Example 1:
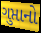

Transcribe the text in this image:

ગુપ્તાનો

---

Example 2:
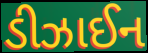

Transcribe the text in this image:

ડીઝાઈન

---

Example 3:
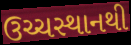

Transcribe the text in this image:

ઉચ્ચસ્થાનથી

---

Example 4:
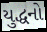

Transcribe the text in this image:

યુદ્ધનો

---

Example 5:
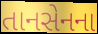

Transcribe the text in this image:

તાનસેનના